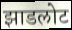
झाडलोट